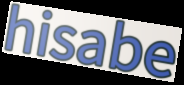
hisabe